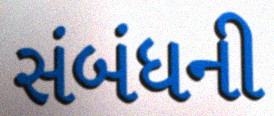
સંબંધની